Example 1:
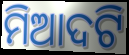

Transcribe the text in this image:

ମିଆଦଟି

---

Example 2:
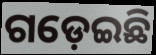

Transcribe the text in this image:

ଗଡ଼େଇଛି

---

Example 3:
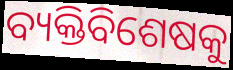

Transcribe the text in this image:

ବ୍ୟକ୍ତିବିଶେଷକୁ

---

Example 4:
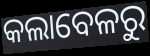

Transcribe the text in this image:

କଲାବେଳରୁ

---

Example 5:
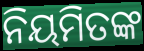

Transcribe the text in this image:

ନିୟମିତଙ୍କ